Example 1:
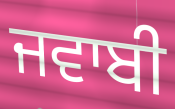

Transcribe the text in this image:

ਜਵਾਬੀ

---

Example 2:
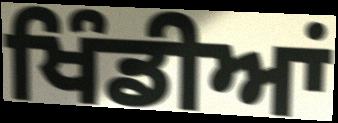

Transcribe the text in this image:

ਖਿੰਡੀਆਂ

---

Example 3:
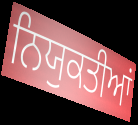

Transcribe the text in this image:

ਨਿਯੁਕਤੀਆਂ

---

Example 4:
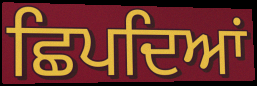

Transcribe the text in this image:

ਛਿਪਦਿਆਂ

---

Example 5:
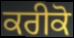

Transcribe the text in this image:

ਕਰੀਕੋ